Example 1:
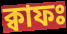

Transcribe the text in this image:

ক্বাফঃ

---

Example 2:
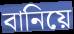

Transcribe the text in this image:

বানিয়ে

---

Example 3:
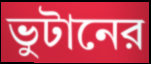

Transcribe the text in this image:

ভুটানের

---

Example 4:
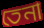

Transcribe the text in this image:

তেনা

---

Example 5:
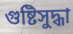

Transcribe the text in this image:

গুষ্টিসুদ্ধা